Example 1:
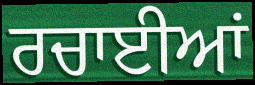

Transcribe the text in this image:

ਰਚਾਈਆਂ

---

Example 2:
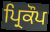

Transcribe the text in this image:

ਪ੍ਰਿਕੌਪ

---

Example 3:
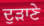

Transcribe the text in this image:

ਦੁੜਾਣੇ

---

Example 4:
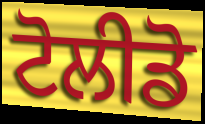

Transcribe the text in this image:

ਟੋਲੀਡੋ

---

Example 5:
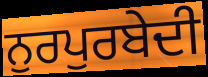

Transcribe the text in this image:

ਨੁਰਪੁਰਬੇਦੀ